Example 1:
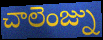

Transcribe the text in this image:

చాలెంజ్ను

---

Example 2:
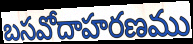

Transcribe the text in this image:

బసవోదాహరణము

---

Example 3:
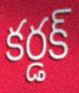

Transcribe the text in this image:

కర్డక్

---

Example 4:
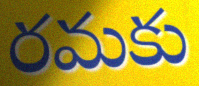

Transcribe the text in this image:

రమకు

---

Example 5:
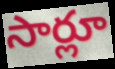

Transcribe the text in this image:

సార్లూ